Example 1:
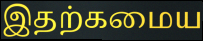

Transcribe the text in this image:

இதற்கமைய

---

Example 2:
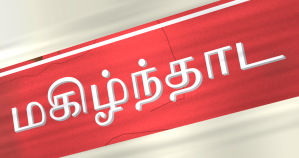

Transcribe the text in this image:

மகிழ்ந்தாட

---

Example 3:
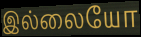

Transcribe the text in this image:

இல்லையோ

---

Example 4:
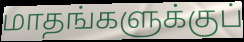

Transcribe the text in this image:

மாதங்களுக்குப்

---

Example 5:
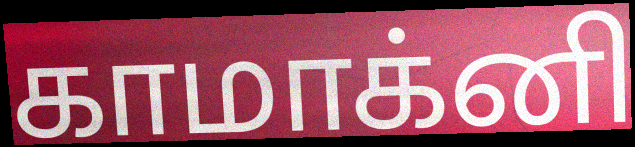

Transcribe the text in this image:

காமாக்னி